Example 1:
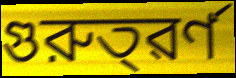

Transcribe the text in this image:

গুৰুত্ৱৰ্ণ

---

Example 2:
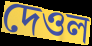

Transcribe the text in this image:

দেওল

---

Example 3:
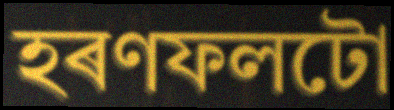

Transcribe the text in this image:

হৰণফলটো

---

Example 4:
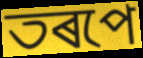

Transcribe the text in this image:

তৰপে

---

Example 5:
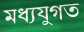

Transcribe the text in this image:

মধ্যযুগত